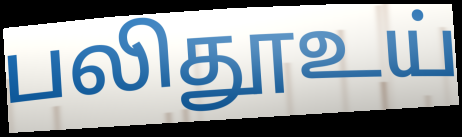
பலிதூஉய்